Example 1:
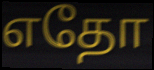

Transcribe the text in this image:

எதோ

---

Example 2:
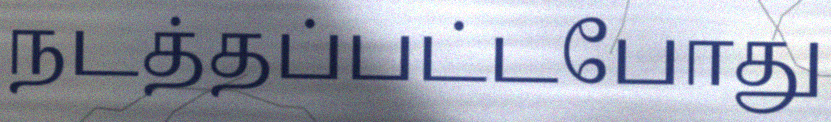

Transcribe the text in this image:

நடத்தப்பட்டபோது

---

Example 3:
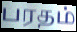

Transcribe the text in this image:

பரதம்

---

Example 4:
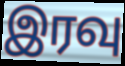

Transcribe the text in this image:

இரவு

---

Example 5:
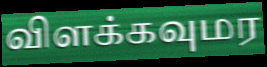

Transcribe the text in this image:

விளக்கவுமர